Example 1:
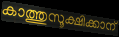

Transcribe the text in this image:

കാത്തുസൂക്ഷിക്കാന്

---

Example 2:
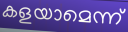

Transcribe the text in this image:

കളയാമെന്ന്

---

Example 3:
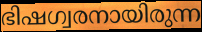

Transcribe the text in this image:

ഭിഷഗ്വരനായിരുന്ന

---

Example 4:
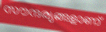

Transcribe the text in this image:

സൗന്ദര്യങ്ങളാണ്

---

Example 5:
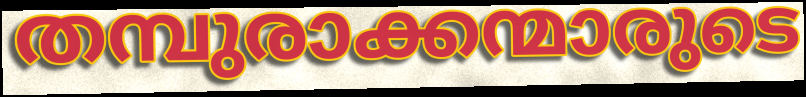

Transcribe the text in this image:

തമ്പുരാക്കന്മാരുടെ